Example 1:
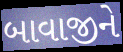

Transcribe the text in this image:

બાવાજીને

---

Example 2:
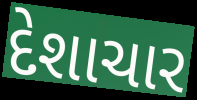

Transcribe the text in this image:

દેશાચાર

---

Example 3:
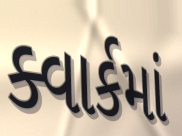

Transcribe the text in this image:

ક્વાર્કમાં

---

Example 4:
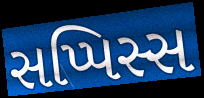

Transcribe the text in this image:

સપ્પિસ્સ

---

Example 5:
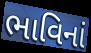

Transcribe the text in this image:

ભાવિનાં